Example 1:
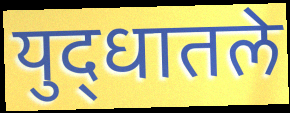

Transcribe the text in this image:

युद्धातले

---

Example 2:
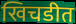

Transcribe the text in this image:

खिचडीत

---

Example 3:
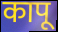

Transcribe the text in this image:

कापू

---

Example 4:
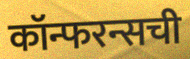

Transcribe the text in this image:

कॉन्फरन्सची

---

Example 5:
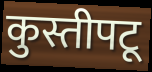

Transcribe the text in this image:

कुस्तीपटू